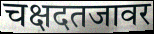
चक्षदतजावर